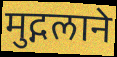
मुद्गलाने